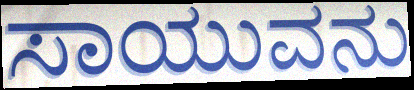
ಸಾಯುವನು